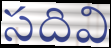
సదివి